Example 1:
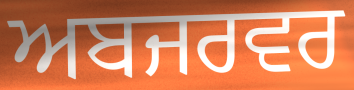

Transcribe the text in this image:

ਅਬਜਰਵਰ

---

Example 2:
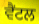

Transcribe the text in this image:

ਵੈਂਟਲ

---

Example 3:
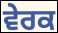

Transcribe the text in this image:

ਵੇਰਕ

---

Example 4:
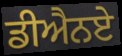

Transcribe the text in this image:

ਡੀਐਨਏ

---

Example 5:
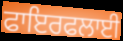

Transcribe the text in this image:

ਫਾਇਰਫਲਾਈ